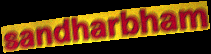
sandharbham